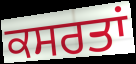
ਕਸਰਤਾਂ